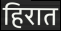
हिरात